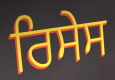
ਰਿਸੇਸ